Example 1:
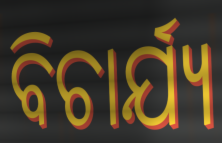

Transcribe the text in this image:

ବିଚାର୍ଯ୍ୟ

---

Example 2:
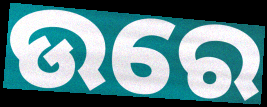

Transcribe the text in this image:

ଉରେ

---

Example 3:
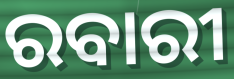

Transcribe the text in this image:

ରବାରୀ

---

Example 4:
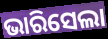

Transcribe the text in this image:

ଭାରିସେଲା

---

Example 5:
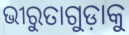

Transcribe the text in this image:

ଭୀରୁତାଗୁଡ଼ାକୁ